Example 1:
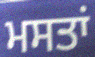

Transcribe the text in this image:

ਮਸਤਾਂ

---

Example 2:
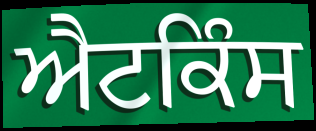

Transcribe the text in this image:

ਐਟਕਿੰਸ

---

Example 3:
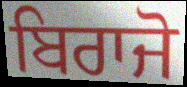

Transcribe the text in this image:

ਬਿਰਾਜੋ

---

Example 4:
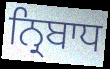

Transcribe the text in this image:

ਨ੍ਰਿਬਾਧ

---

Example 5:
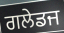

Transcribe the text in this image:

ਗਲੇਡਜ